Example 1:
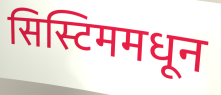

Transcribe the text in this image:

सिस्टिममधून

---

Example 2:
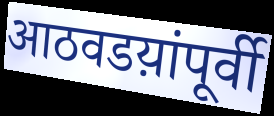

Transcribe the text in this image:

आठवडय़ांपूर्वी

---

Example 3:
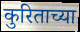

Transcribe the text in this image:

कुरिताच्या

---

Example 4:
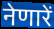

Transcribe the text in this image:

नेणारें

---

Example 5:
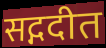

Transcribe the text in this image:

सद्गदीत